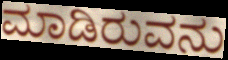
ಮಾಡಿರುವನು